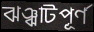
ঝঞ্ঝাটপূর্ণ